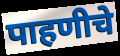
पाहणीचे